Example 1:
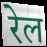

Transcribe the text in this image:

रेल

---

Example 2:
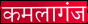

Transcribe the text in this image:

कमलागंज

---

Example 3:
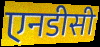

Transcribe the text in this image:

एनडीसी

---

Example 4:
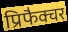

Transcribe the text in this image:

प्रिफैक्चर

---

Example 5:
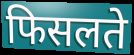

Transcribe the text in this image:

फिसलते